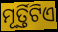
ମୂର୍ତ୍ତିଟିଏ